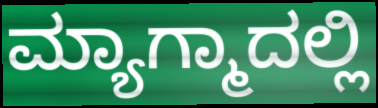
ಮ್ಯಾಗ್ಮಾದಲ್ಲಿ